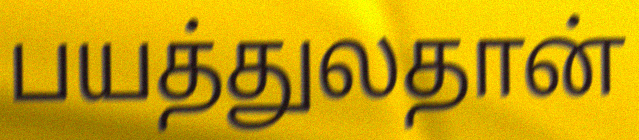
பயத்துலதான்